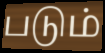
படும்